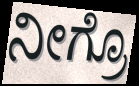
ನೀಗ್ರೊ